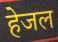
हेजल